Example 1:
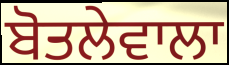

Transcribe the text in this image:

ਬੋਤਲੇਵਾਲਾ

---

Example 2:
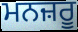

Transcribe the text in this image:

ਮਨਜ਼ਰੂ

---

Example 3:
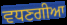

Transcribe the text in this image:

ਵਧਣਗੀਆ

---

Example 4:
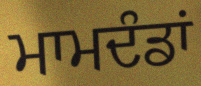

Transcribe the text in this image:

ਮਾਮਦੰਡਾਂ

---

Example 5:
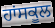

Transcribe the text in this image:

ਹਾਂਸਕੂਲ